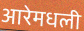
आरेमधली